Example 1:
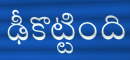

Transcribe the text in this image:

ఢీకొట్టింది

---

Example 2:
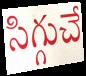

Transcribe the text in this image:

సిగ్గుచే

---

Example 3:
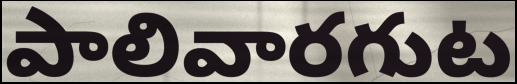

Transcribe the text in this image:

పాలివారగుట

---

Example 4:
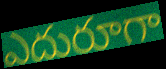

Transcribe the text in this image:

ఎదురూగా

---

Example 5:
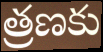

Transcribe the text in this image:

త్రణకు